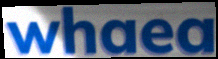
whaea